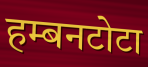
हम्बनटोटा